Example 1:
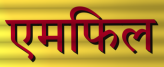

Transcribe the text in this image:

एमफिल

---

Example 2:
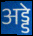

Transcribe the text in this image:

अड्डे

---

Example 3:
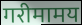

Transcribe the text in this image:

गरीमामय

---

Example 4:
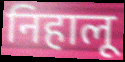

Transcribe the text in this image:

निहालू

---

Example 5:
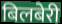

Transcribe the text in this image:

बिलबेरी